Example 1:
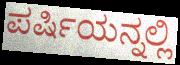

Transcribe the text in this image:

ಪರ್ಷಿಯನ್ನಲ್ಲಿ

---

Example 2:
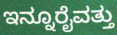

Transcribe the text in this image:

ಇನ್ನೂರೈವತ್ತು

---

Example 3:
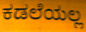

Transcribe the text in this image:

ಕಡಲೆಯಲ್ಲ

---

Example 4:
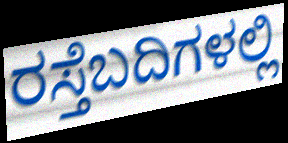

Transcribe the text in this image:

ರಸ್ತೆಬದಿಗಳಲ್ಲಿ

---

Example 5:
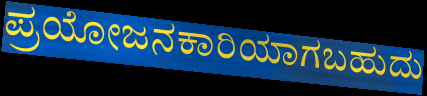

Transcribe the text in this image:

ಪ್ರಯೋಜನಕಾರಿಯಾಗಬಹುದು